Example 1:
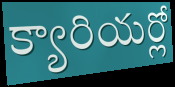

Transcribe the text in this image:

క్యారియర్లో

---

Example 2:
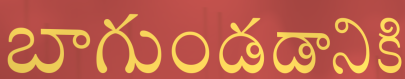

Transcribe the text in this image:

బాగుండడానికి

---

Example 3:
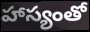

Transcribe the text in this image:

హాస్యంతో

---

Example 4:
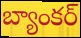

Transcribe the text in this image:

బ్యాంకర్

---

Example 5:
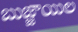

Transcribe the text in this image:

బుజ్జాయిల